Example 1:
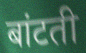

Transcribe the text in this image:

बांटती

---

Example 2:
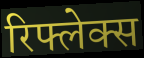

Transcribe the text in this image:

रिफ्लेक्स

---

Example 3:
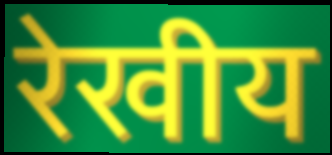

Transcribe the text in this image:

रेखीय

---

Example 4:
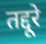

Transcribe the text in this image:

तद्दूरे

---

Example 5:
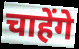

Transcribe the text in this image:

चाहेंगे